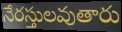
నేరస్తులవుతారు